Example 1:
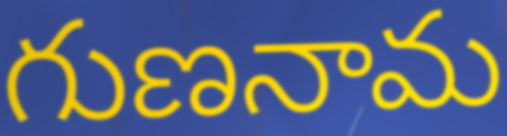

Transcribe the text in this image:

గుణనామ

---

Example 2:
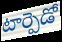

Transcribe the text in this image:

టార్పెడో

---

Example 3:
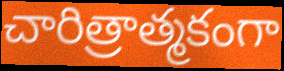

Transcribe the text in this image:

చారిత్రాత్మకంగా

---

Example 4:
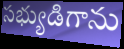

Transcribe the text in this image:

సభ్యుడిగాను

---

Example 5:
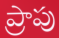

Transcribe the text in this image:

ప్రాపు